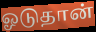
ஓடுதான்